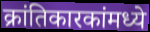
क्रांतिकारकांमध्ये